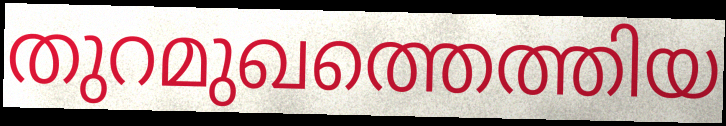
തുറമുഖത്തെത്തിയ